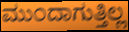
ಮುಂದಾಗುತ್ತಿಲ್ಲ